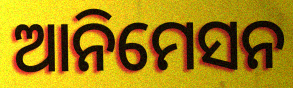
ଆନିମେସନ